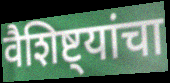
वैशिष्ट्यांचा